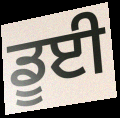
ਡੂਈ